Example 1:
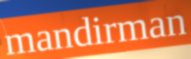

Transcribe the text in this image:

mandirman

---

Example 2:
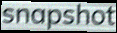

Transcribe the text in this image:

snapshot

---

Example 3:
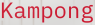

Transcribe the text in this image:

Kampong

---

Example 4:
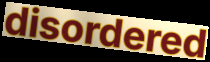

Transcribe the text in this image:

disordered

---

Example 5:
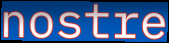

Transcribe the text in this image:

nostre